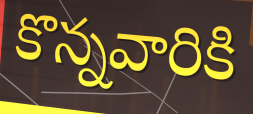
కొన్నవారికి